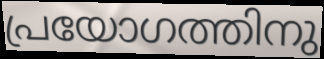
പ്രയോഗത്തിനു